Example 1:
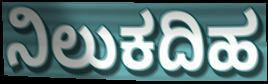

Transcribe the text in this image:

ನಿಲುಕದಿಹ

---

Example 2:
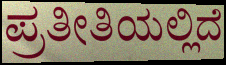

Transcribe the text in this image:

ಪ್ರತೀತಿಯಲ್ಲಿದೆ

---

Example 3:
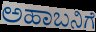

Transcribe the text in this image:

ಅಹಾಬನಿಗೆ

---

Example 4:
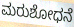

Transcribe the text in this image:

ಮರುಶೋಧನೆ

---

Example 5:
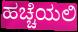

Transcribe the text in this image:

ಹಚ್ಚೆಯಲಿ